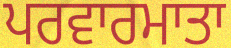
ਪਰਵਾਰਮਾਤਾ